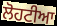
ਲੋਹਟੀਆ